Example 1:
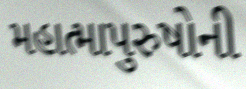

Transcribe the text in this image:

મહાત્માપુરુષોની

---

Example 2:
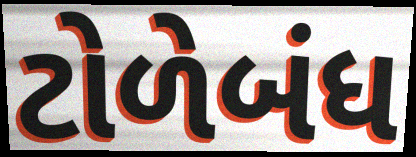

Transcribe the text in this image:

ટોળેબંધ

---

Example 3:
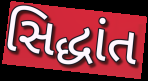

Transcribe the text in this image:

સિદ્ધાંત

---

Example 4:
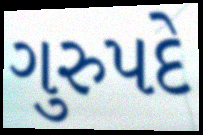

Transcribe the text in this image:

ગુરુપદે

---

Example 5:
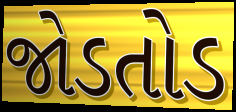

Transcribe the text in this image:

જોડતોડ